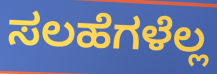
ಸಲಹೆಗಳೆಲ್ಲ